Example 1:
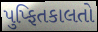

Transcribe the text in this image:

પુપ્ફિતકાલતો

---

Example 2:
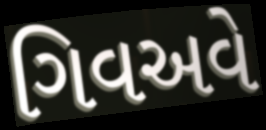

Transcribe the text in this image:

ગિવઅવે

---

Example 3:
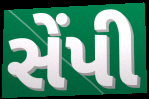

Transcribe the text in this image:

સેંપી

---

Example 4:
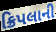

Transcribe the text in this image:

ક્રિપલાની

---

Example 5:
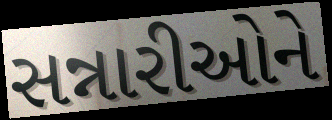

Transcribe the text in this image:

સન્નારીઓને